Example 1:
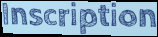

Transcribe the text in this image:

Inscription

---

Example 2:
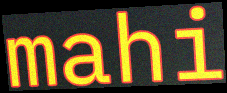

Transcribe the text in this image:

mahi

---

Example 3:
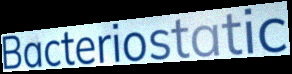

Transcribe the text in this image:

Bacteriostatic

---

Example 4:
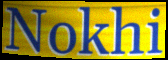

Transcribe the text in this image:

Nokhi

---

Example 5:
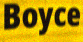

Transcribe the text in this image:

Boyce